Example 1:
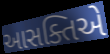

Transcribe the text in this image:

આસક્તિએ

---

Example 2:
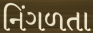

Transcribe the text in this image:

નિંગળતા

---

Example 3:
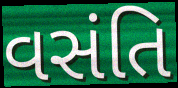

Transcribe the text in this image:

વસંતિ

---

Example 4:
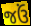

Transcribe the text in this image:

જઉં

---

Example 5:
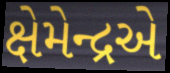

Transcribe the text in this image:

ક્ષેમેન્દ્રએ